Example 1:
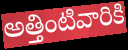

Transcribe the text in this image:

అత్తింటివారికి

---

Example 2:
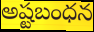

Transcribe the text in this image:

అష్టబంధన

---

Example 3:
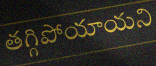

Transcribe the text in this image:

తగ్గిపోయాయని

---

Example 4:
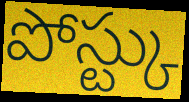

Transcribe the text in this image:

పోస్ట్కు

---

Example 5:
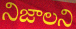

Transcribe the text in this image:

నిజాలని